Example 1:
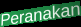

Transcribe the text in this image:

Peranakan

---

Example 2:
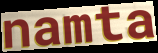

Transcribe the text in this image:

namta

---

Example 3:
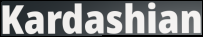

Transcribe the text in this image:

Kardashian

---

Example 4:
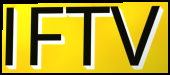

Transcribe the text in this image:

IFTV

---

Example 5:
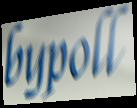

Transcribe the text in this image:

bypoll